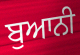
ਬੁਆਨੀ